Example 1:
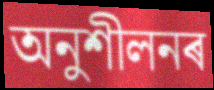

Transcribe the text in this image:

অনুশীলনৰ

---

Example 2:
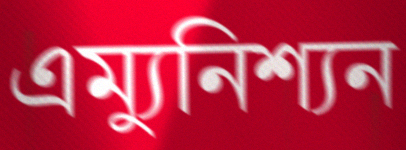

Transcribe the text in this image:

এম্যুনিশ্যন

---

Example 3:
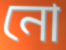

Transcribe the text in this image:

নো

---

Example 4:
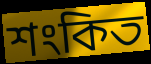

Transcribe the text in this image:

শংকিত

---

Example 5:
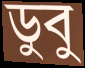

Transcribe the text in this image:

ডুবু